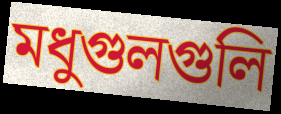
মধুগুলগুলি